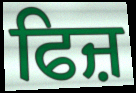
ਫਿਜ਼